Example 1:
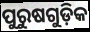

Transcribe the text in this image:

ପୁରୁଷଗୁଡ଼ିକ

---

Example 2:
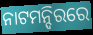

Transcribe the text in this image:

ନାଟମନ୍ଦିରରେ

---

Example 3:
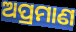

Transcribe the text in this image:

ଅପ୍ରମାଣ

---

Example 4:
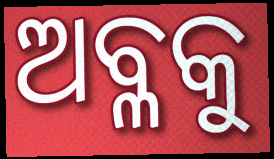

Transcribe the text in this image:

ଅବ୍ଳକୁ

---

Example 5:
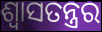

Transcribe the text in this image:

ଶ୍ଵାସତନ୍ତ୍ରର